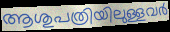
ആശുപത്രിയിലുള്ളവർ